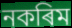
নকৰিম